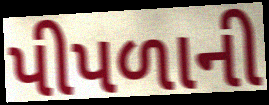
પીપળાની